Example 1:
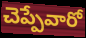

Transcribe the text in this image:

చెప్పేవారో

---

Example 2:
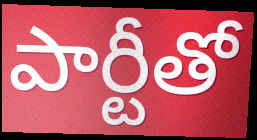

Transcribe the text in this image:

పార్టీతో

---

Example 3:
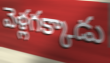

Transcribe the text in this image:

వెళ్లగక్కాడు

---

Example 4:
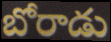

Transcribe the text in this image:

బోరాడు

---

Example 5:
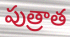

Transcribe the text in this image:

పుత్రాత